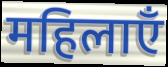
महिलाएँ